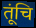
तूंचि